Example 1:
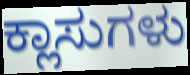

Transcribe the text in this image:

ಕ್ಲಾಸುಗಳು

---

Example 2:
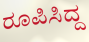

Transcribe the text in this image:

ರೂಪಿಸಿದ್ದ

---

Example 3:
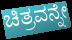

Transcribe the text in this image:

ಚಿತ್ರವನ್ನೇ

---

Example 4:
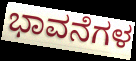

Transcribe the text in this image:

ಭಾವನೆಗಳ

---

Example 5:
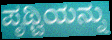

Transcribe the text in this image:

ಪೃಥ್ವಿಯನ್ನು